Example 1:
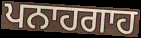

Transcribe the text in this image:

ਪਨਾਹਗਾਹ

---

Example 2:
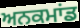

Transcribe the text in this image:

ਅਨਕਮਾਂਡ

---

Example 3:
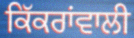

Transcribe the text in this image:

ਕਿੱਕਰਾਂਵਾਲੀ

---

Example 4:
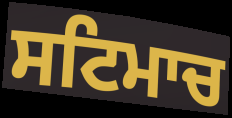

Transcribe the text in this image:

ਸਟਿਮਾਚ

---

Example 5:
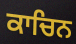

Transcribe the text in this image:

ਕਾਚਿਨ